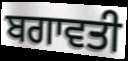
ਬਗਾਵਤੀ